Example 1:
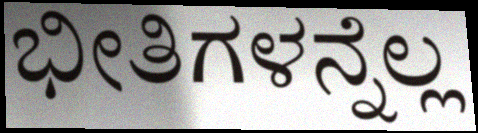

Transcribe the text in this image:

ಭೀತಿಗಳನ್ನೆಲ್ಲ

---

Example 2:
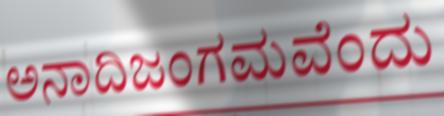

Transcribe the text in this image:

ಅನಾದಿಜಂಗಮವೆಂದು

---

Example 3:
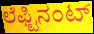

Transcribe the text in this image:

ಲೆಫ್ಟಿನಂಟ್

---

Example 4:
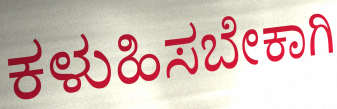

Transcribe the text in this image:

ಕಳುಹಿಸಬೇಕಾಗಿ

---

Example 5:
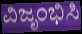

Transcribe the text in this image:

ವಿಜೃಂಭಿಸಿ